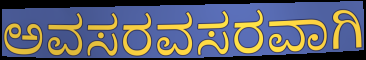
ಅವಸರವಸರವಾಗಿ